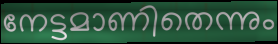
നേട്ടമാണിതെന്നും